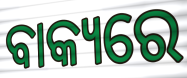
ବାକ୍ୟରେ